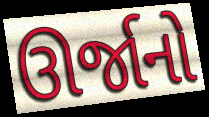
ઊર્જાનો